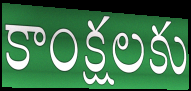
కాంక్షలకు